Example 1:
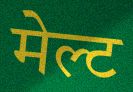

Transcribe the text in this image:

मेल्ट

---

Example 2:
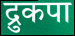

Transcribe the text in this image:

द्रुकपा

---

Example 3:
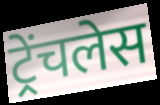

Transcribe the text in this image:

ट्रेंचलेस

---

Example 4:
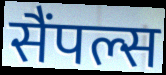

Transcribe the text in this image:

सैंपल्‍स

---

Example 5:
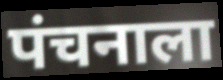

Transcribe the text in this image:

पंचनाला